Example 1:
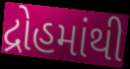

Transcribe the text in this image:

દ્રોહમાંથી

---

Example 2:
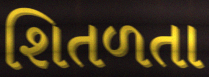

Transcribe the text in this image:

શિતળતા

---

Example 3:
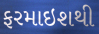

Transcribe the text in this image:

ફરમાઇશથી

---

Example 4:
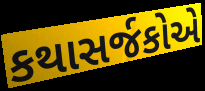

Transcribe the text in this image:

કથાસર્જકોએ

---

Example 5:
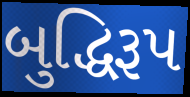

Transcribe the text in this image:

બુદ્ધિરૂપ